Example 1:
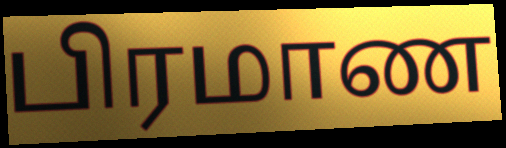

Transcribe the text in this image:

பிரமாண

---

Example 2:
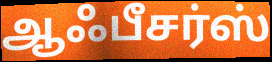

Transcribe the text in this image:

ஆஃபீசர்ஸ்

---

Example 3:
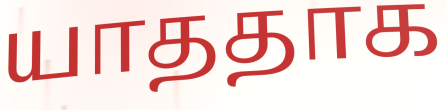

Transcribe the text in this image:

யாததாக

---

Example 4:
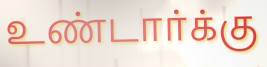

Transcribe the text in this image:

உண்டார்க்கு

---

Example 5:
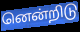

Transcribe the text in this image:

னென்றிடு